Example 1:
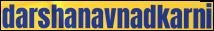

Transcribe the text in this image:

darshanavnadkarni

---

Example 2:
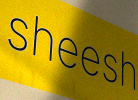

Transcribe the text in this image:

sheesh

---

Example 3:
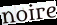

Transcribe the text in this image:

noire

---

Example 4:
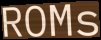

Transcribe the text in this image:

ROMs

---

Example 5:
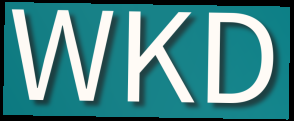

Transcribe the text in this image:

WKD